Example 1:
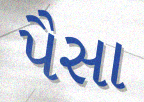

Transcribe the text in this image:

પૈસા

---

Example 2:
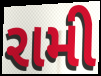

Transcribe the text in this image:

રામી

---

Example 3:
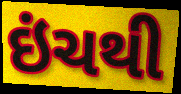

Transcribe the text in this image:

ઇંચથી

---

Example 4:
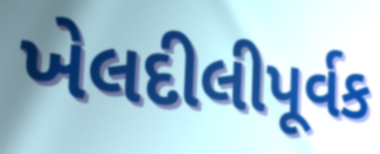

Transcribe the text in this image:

ખેલદીલીપૂર્વક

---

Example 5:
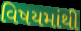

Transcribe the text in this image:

વિષયમાંથી